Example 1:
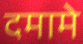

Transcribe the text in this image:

दमामे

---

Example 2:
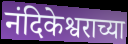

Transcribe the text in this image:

नंदिकेश्वराच्या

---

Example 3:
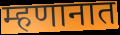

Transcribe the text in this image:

म्हणानात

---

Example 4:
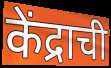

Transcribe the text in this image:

केंद्राची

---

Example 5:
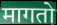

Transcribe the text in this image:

मागतो